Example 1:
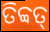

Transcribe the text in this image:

ତିବ୍ବତ୍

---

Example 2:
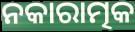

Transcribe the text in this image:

ନକାରାତ୍ମକ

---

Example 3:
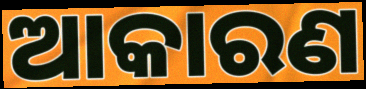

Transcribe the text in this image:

ଆକାରଣ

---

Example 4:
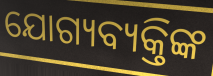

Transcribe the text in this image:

ଯୋଗ୍ୟବ୍ୟକ୍ତିଙ୍କ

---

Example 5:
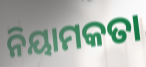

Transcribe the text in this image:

ନିୟାମକତା